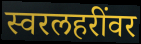
स्वरलहरींवर